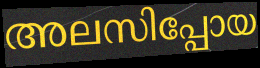
അലസിപ്പോയ